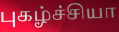
புகழ்ச்சியா